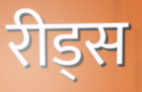
रीड्स